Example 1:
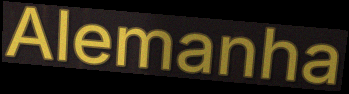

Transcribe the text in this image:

Alemanha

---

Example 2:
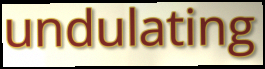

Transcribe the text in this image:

undulating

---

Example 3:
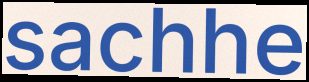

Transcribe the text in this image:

sachhe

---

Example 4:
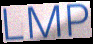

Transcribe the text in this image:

LMP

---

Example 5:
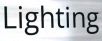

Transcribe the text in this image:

Lighting